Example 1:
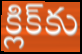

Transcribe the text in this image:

క్లిక్‌కు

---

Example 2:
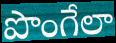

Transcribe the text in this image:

పొంగేలా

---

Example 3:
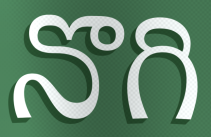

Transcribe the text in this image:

నొగి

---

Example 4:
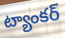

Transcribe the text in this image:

ట్యాంకర్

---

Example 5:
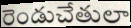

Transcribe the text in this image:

రెండుచేతులా